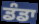
ਡੰਡਾ